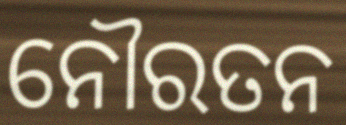
ନୌରତନ